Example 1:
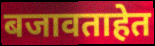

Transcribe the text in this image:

बजावताहेत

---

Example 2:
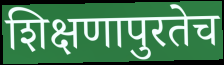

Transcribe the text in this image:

शिक्षणापुरतेच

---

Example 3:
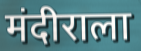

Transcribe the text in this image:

मंदीराला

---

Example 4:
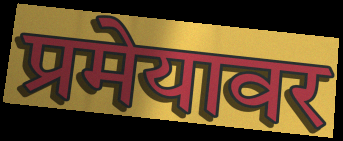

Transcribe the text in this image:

प्रमेयावर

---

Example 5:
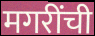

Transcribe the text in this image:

मगरींची